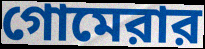
গোমেরার